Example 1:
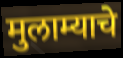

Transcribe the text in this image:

मुलाम्याचे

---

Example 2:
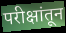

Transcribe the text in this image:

परीक्षांतून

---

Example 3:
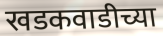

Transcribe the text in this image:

खडकवाडीच्या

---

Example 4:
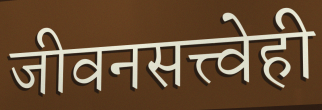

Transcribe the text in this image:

जीवनसत्त्वेही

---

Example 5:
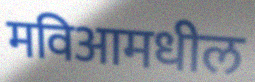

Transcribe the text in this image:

मविआमधील